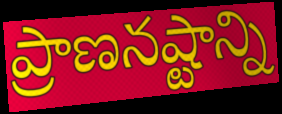
ప్రాణనష్టాన్ని